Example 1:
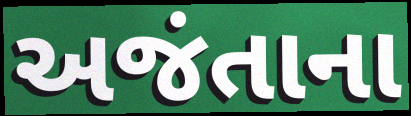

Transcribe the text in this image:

અજંતાના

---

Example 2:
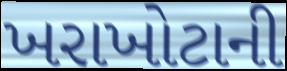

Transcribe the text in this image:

ખરાખોટાની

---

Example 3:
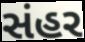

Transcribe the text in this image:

સંહર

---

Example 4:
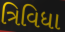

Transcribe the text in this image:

ત્રિવિધા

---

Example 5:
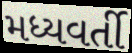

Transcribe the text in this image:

મધ્યવર્તી